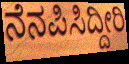
ನೆನಪಿಸಿದ್ದೀರಿ